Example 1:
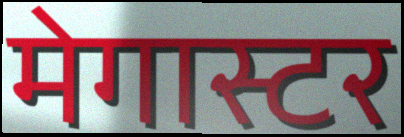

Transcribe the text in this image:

मेगास्टर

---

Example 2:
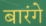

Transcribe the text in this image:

बारंगे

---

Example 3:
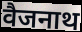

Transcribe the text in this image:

वैजनाथ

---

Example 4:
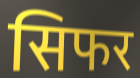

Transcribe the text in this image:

सिफर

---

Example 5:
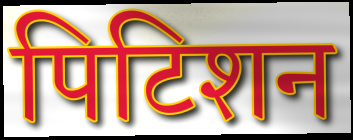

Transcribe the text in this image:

पिटिशन